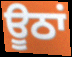
ਊਠਾਂ